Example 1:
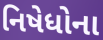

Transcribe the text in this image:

નિષેધોના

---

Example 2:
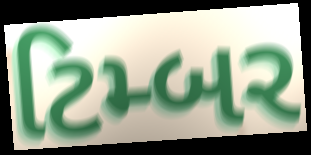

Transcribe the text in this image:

ટિમ્બર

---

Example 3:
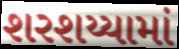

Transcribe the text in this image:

શરશય્યામાં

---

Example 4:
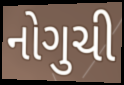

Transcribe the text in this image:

નોગુચી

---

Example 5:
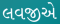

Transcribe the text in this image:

લવજીએ